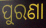
ପୁରଣା